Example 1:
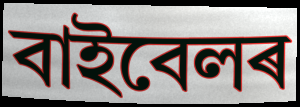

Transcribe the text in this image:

বাইবেলৰ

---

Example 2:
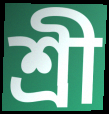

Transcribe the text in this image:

শ্ৰী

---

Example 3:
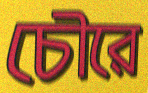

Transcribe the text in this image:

চৌৱে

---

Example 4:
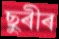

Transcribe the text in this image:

ছুৰীৰ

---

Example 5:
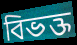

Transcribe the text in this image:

বিভক্ত